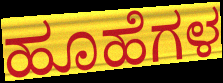
ಹೂಹೆಗಳ